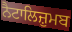
ਨੈਟਾਲਿਜ਼ੁਮਬ